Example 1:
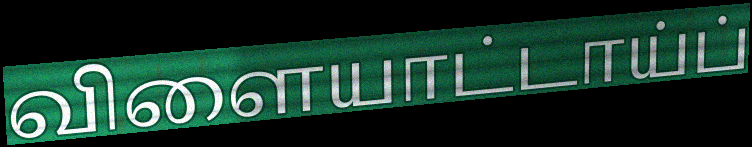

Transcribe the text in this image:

விளையாட்டாய்ப்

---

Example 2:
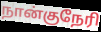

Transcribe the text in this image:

நான்குநேரி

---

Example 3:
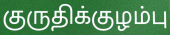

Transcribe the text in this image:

குருதிக்குழம்பு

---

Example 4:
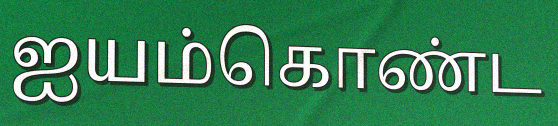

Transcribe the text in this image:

ஐயம்கொண்ட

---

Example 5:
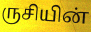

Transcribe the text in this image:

ருசியின்